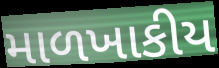
માળખાકીય